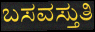
ಬಸವಸ್ತುತಿ